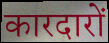
कारदारों